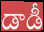
డాడీ